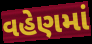
વહેણમાં